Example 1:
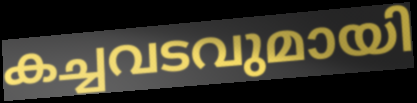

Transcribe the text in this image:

കച്ചവടവുമായി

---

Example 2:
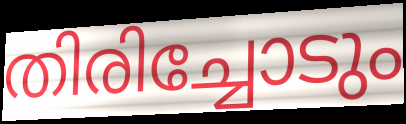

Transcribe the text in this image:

തിരിച്ചോടും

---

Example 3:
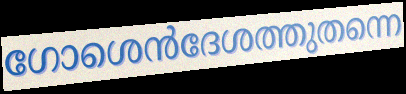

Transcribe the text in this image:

ഗോശെൻദേശത്തുതന്നെ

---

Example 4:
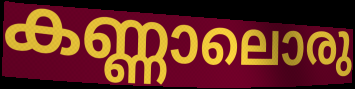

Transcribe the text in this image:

കണ്ണാലൊരു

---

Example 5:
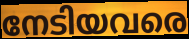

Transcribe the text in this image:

നേടിയവരെ